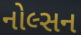
નોલ્સન